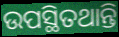
ଉପସ୍ଥିତଥାନ୍ତି